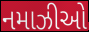
નમાઝીઓ